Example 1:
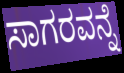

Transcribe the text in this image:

ಸಾಗರವನ್ನೆ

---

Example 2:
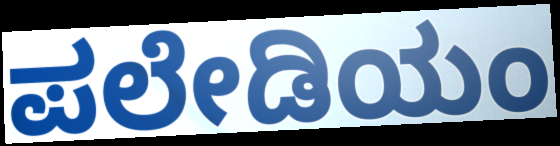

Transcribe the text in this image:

ಪಲೇಡಿಯಂ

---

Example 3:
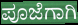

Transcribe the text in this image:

ಪೂಜೆಗಾಗಿ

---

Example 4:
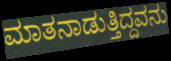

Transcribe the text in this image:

ಮಾತನಾಡುತ್ತಿದ್ದವನು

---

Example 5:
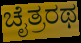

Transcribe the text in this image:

ಚೈತ್ರರಥ